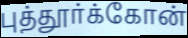
புத்தூர்க்கோன்